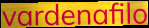
vardenafilo